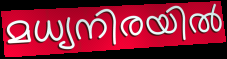
മധ്യനിരയിൽ